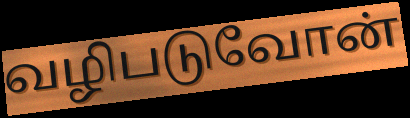
வழிபடுவோன்